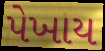
પેખાય